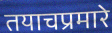
तयाचप्रमारे